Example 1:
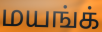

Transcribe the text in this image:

மயங்க்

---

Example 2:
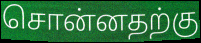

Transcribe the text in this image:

சொன்னதற்கு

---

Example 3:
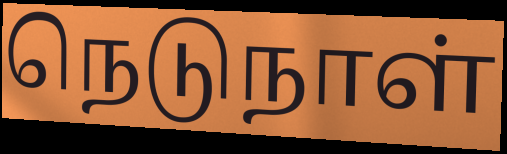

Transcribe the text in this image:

நெடுநாள்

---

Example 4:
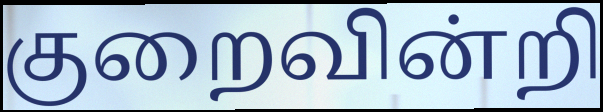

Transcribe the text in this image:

குறைவின்றி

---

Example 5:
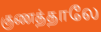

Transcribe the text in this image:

குணத்தாலே